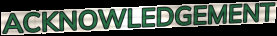
ACKNOWLEDGEMENT